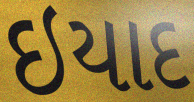
ઇયાદ